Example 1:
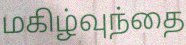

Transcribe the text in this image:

மகிழ்வுந்தை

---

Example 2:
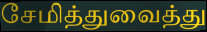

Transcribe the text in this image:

சேமித்துவைத்து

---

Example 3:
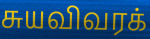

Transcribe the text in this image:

சுயவிவரக்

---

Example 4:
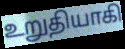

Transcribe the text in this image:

உறுதியாகி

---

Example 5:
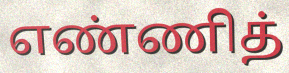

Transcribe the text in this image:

எண்ணித்